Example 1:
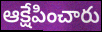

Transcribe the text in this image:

ఆక్షేపించారు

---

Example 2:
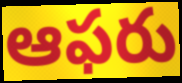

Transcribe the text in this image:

ఆఫరు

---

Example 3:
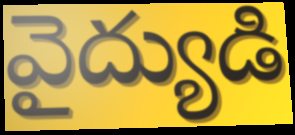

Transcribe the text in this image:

వైద్యుడి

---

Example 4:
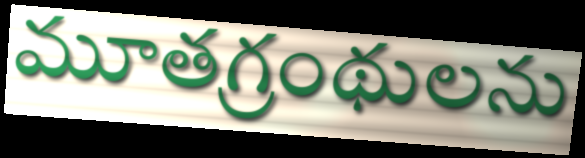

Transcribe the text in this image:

మూతగ్రంథులను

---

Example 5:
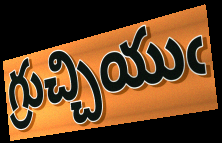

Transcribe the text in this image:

గ్రుచ్చియుఁ